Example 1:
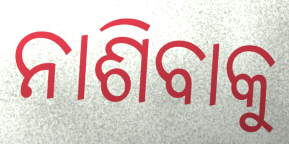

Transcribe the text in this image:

ନାଶିବାକୁ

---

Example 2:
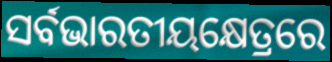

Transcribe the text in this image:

ସର୍ବଭାରତୀୟକ୍ଷେତ୍ରରେ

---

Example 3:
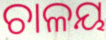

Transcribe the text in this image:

ଚାଳୟ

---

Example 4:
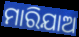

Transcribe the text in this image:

ମାରିଯାଅ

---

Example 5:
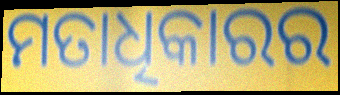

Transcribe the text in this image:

ମତାଧିକାରର